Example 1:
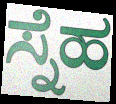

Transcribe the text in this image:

ಸ್ನೆಹ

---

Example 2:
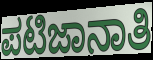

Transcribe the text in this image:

ಪಟಿಜಾನಾತಿ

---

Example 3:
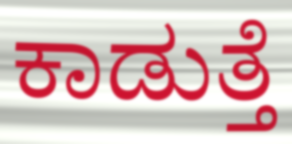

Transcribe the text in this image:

ಕಾಡುತ್ತೆ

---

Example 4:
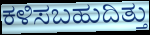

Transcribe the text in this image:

ಕಳಿಸಬಹುದಿತ್ತು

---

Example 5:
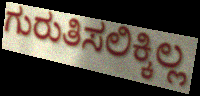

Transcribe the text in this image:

ಗುರುತಿಸಲಿಕ್ಕಿಲ್ಲ